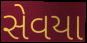
સેવયા